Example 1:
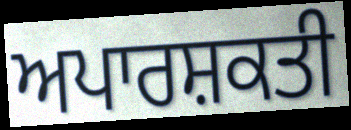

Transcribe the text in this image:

ਅਪਾਰਸ਼ਕਤੀ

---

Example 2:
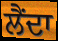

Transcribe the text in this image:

ਲੈਂਦਾ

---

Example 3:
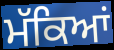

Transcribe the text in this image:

ਮੱਕਿਆਂ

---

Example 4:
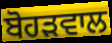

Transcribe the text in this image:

ਬੋਹੜਵਾਲ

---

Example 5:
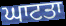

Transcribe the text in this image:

ਘਾਟਤਾ